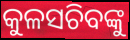
କୁଳସଚିବଙ୍କୁ